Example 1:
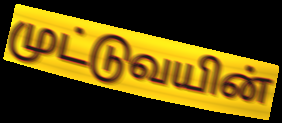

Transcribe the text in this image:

முட்டுவயின்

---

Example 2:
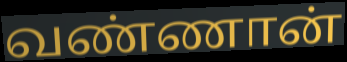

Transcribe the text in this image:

வண்ணான்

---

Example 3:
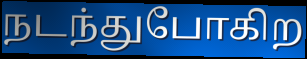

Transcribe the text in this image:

நடந்துபோகிற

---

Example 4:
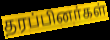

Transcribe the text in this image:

தரப்பினர்கள்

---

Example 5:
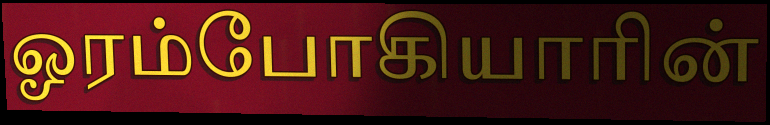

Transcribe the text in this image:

ஓரம்போகியாரின்